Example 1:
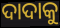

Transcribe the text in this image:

ଦାଦାକୁ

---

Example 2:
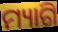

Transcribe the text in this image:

ମ୍ୟାଗି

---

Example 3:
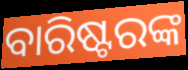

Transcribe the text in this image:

ବାରିଷ୍ଟରଙ୍କ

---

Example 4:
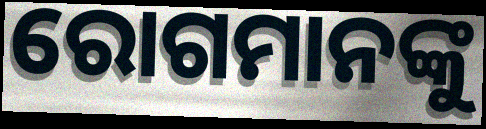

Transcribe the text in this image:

ରୋଗମାନଙ୍କୁ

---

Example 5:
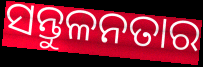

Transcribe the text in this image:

ସନ୍ତୁଳନତାର